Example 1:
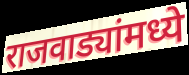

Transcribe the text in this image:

राजवाड्यांमध्ये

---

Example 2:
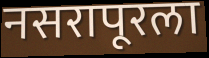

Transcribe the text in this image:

नसरापूरला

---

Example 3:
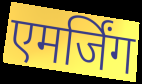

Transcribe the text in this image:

एमर्जिंग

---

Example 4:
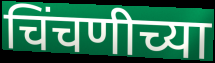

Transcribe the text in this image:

चिंचणीच्या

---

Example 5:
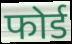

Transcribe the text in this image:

फोर्ड